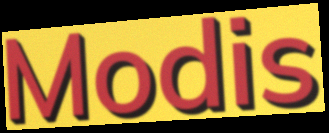
Modis